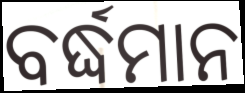
ବର୍ଦ୍ଧମାନ